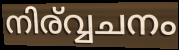
നിര്വ്വചനം